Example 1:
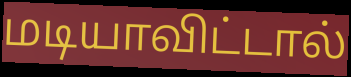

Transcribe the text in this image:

மடியாவிட்டால்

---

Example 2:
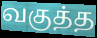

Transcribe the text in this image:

வகுத்த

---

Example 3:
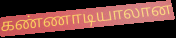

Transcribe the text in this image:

கண்ணாடியாலான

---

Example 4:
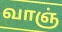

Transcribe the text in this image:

வாஞ்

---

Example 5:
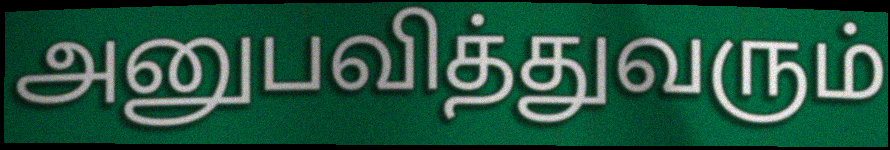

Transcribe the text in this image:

அனுபவித்துவரும்